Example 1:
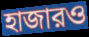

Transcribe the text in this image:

হাজারও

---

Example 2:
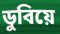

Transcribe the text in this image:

ডুবিয়ে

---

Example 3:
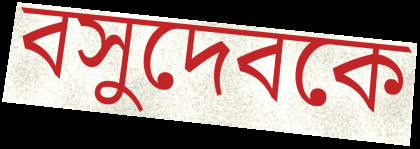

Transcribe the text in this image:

বসুদেবকে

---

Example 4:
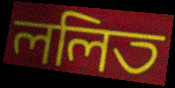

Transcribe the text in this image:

ললিত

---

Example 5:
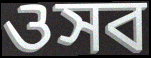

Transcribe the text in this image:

ওসব